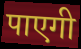
पाएगी